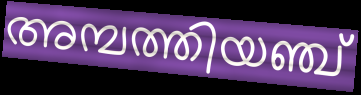
അമ്പത്തിയഞ്ച്